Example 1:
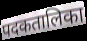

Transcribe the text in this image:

पदकतालिका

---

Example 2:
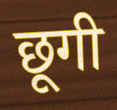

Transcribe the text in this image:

छूगी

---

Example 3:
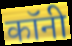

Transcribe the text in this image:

कॉनी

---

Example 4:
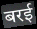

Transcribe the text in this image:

बरई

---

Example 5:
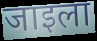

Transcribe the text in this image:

जाइला